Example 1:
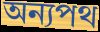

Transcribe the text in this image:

অন্যপথ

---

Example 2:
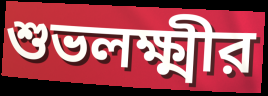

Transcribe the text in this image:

শুভলক্ষ্মীর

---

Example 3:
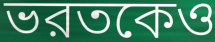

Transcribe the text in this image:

ভরতকেও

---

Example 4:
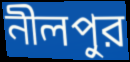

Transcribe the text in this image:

নীলপুর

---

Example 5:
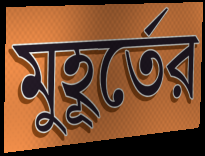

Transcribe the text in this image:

মুহূর্তের